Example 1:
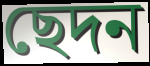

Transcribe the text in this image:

ছেদন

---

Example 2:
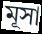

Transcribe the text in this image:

মূসা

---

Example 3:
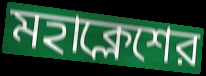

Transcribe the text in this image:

মহাক্লেশের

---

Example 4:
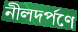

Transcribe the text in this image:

নীলদর্পণে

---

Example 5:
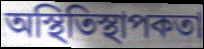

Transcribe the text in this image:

অস্থিতিস্থাপকতা